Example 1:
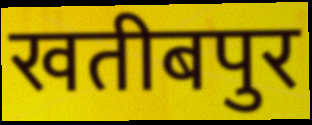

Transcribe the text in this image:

खतीबपुर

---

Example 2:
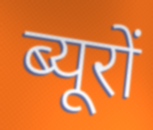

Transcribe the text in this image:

ब्यूरों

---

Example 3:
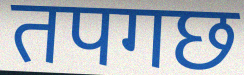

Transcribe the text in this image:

तपगछ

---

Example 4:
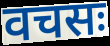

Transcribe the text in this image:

वचसः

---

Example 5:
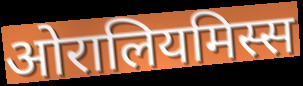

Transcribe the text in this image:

ओरालियमिस्स